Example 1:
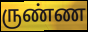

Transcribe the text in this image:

ருண்ண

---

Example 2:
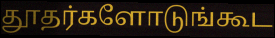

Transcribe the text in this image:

தூதர்களோடுங்கூட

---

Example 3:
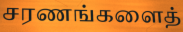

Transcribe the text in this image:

சரணங்களைத்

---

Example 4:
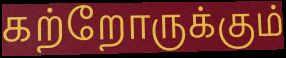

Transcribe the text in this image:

கற்றோருக்கும்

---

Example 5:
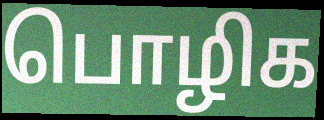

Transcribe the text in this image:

பொழிக